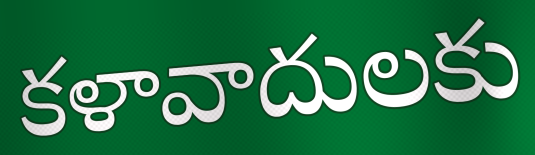
కళావాదులకు